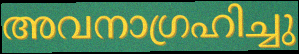
അവനാഗ്രഹിച്ചു